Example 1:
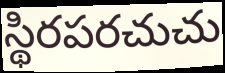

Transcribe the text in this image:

స్థిరపరచుచు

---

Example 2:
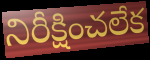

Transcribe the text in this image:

నిరీక్షించలేక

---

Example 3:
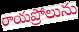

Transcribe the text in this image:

రాయప్రోలును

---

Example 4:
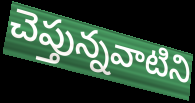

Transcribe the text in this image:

చెప్తున్నవాటిని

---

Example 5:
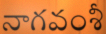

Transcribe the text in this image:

నాగవంశీ